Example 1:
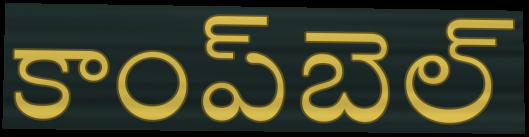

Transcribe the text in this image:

కాంప్‌బెల్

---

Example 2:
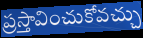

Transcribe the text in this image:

ప్రస్తావించుకోవచ్చు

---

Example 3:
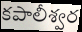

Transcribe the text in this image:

కపాలీశ్వర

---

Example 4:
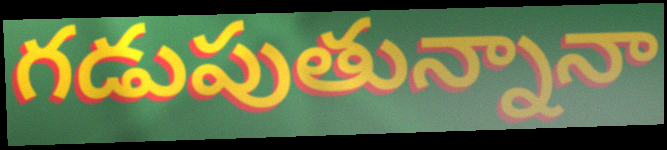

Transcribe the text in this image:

గడుపుతున్నానా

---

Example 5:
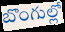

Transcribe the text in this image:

బొంగుల్లో